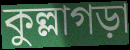
কুল্লাগড়া